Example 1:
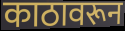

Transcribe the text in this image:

काठावरून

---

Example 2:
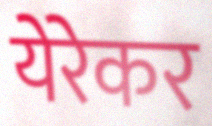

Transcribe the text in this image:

येरेकर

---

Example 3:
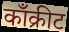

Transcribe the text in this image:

काँक्रीट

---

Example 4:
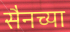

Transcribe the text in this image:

सैनच्या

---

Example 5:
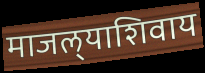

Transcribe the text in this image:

माजल्याशिवाय